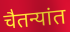
चैतन्यांत